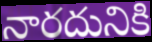
నారదునికి